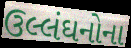
ઉલ્લંઘનોના